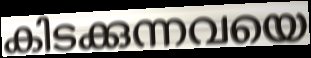
കിടക്കുന്നവയെ